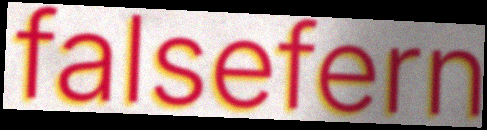
falsefern